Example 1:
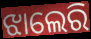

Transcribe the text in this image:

ଝାଲେରି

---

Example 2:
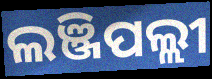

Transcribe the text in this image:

ଲଞ୍ଜିପଲ୍ଲୀ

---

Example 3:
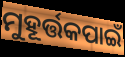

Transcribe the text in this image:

ମୁହୂର୍ତ୍ତକପାଇଁ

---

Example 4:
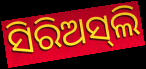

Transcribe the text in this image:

ସିରିଅସ୍‌ଲି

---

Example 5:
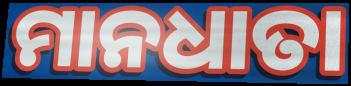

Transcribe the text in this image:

ମାନଧାତା